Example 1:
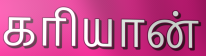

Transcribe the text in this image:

கரியான்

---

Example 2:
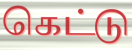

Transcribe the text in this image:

கெட்டு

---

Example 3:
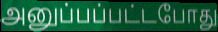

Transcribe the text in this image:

அனுப்பப்பட்டபோது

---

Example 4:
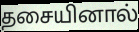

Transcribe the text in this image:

தசையினால்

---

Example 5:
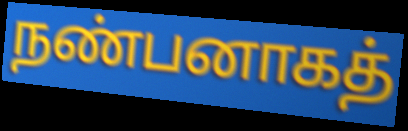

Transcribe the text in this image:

நண்பனாகத்